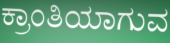
ಕ್ರಾಂತಿಯಾಗುವ